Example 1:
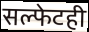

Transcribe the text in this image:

सल्फेटही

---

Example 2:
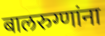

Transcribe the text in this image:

बालरुग्णांना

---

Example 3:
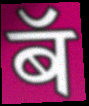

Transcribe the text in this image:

बॅ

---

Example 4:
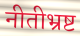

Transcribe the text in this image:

नीतीभ्रष्ट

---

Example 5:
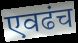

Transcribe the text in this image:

एवढंच